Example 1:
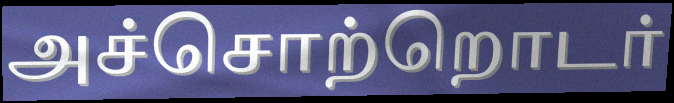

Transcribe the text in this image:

அச்சொற்றொடர்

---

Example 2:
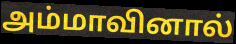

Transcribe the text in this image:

அம்மாவினால்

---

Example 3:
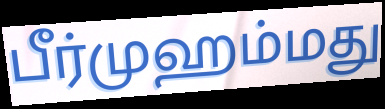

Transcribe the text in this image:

பீர்முஹம்மது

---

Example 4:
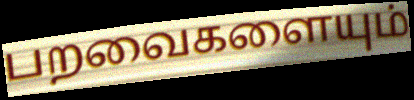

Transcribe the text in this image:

பறவைகளையும்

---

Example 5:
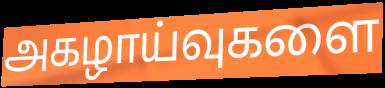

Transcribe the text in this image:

அகழாய்வுகளை